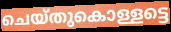
ചെയ്തുകൊള്ളട്ടെ